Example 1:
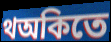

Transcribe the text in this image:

থঅকিতে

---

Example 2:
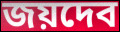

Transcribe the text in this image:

জয়দেব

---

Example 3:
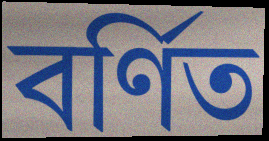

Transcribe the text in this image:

বর্ণিত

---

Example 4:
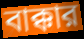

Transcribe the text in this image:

বাক্কার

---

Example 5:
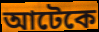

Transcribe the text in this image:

আটেকে